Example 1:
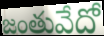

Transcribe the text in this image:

జంతువేదో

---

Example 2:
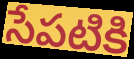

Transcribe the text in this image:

సేపటికి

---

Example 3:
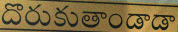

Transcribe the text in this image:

దొరుకుతాండాడా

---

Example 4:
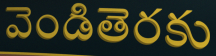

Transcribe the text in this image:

వెండితెరకు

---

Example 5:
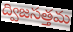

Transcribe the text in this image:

ద్విజసత్తమ